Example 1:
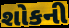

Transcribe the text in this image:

શોકની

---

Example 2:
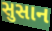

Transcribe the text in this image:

સુસાન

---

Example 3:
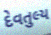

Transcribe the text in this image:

દેવતુલ્ય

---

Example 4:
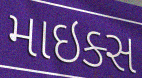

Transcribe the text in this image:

માઇક્સ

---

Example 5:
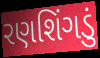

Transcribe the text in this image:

રણશિંગડું